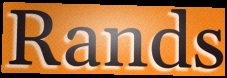
Rands